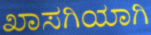
ಖಾಸಗಿಯಾಗಿ